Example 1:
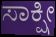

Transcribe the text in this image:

ಸಾಕ್ಷೀ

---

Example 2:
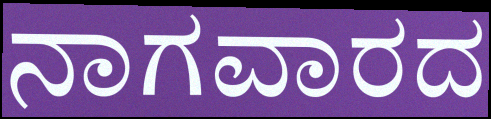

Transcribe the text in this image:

ನಾಗವಾರದ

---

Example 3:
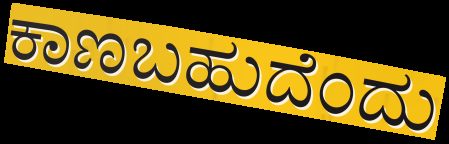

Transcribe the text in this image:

ಕಾಣಬಹುದೆಂದು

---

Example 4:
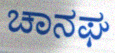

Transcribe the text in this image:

ಚಾನಘ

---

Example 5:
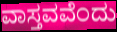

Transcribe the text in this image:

ವಾಸ್ತವವೆಂದು